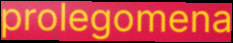
prolegomena